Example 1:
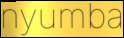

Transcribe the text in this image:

nyumba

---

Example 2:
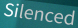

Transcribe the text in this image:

Silenced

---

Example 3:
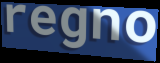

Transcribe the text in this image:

regno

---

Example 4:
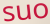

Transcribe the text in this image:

suo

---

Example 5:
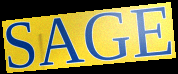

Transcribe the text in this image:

SAGE